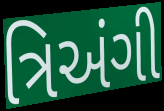
ત્રિઅંગી